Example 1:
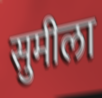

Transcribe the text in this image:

सुमीला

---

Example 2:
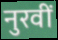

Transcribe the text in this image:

नुरवीं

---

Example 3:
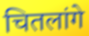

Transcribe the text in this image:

चितलांगे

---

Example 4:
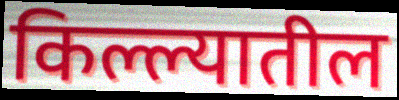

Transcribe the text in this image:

किल्ल्यातील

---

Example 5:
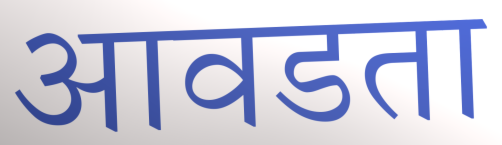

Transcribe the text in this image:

आवडता